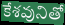
కేశవునితో